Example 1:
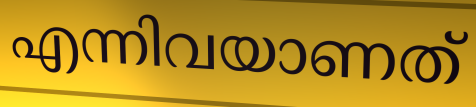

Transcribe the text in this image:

എന്നിവയാണത്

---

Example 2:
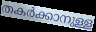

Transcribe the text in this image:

തകർക്കാനുള്ള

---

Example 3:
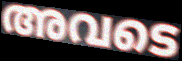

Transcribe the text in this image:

അവടെ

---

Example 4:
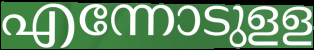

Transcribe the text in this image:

എന്നോടുളള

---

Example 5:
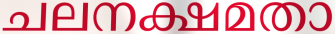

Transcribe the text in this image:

ചലനക്ഷമതാ